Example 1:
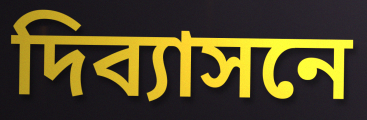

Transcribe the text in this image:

দিব্যাসনে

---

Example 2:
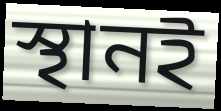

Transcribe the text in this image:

স্থানই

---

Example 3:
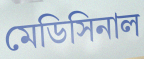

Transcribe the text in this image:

মেডিসিনাল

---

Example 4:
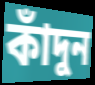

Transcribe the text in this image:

কাঁদুন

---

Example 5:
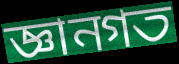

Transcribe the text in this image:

জ্ঞানগত